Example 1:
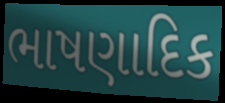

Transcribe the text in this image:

ભાષણાદિક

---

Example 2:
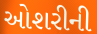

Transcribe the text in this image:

ઓશરીની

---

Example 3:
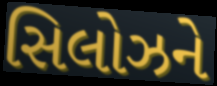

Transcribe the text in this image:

સિલોઝને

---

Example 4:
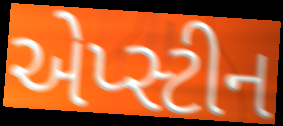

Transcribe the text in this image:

એપ્સ્ટીન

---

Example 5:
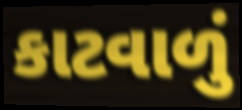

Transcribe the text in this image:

કાટવાળું